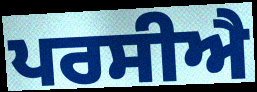
ਪਰਸੀਐ